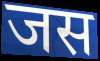
जस